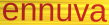
ennuva